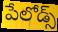
పేలోడ్స్